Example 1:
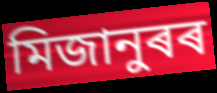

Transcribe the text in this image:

মিজানুৰৰ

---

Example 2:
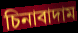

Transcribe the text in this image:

চিনাবাদাম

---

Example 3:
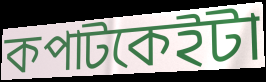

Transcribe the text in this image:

কপাটকেইটা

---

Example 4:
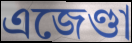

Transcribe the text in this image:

এজেণ্ডা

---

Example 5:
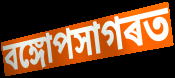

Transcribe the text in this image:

বঙ্গোপসাগৰত